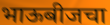
भाऊबीजचा